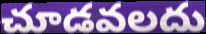
చూడవలదు